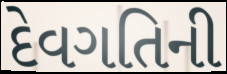
દેવગતિની